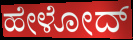
ಹೇಳೋದ್